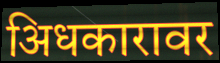
अिधकारावर